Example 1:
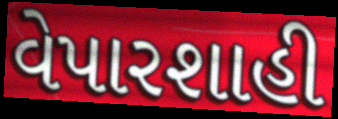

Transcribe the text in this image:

વેપારશાહી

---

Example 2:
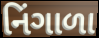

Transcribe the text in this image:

નિંગાળા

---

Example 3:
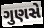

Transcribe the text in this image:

ગુણસે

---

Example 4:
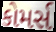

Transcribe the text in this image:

કોમર્સ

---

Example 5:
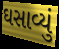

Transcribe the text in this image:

ઘસાવ્યું